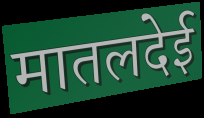
मातलदेई